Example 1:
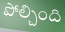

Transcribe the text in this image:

పోల్చింది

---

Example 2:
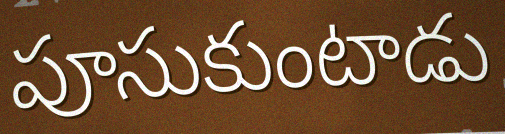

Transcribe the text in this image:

పూసుకుంటాడు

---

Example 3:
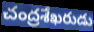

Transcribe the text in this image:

చంద్రశేఖరుడు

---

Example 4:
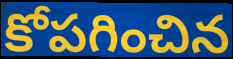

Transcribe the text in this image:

కోపగించిన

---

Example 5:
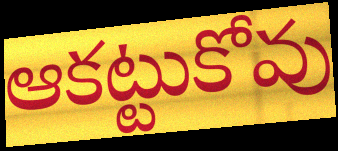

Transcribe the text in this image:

ఆకట్టుకోవు